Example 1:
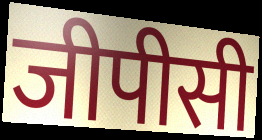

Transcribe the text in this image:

जीपीसी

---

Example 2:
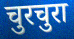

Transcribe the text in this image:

चुरचुरा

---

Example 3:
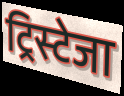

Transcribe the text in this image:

ट्रिस्टेजा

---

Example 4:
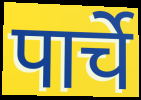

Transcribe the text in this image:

पार्चे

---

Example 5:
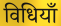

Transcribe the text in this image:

विधियाँ